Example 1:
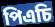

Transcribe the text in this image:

পিএচি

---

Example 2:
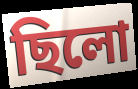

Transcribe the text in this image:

ছিলো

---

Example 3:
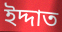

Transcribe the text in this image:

ইদ্দাত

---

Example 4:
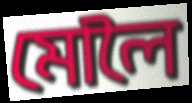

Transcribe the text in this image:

মোলৈ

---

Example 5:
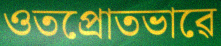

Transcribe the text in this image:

ওতপ্ৰোতভাৱে